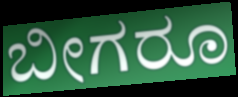
ಬೀಗರೂ